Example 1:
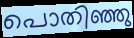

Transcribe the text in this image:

പൊതിഞ്ഞു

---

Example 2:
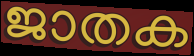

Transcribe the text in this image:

ജാതക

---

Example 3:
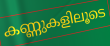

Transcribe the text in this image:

കണ്ണുകളിലൂടെ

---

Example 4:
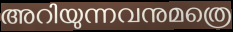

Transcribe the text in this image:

അറിയുന്നവനുമത്രെ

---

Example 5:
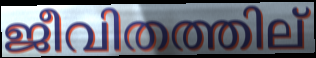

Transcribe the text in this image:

ജീവിതത്തില്